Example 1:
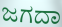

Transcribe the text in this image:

ಜಗದಾ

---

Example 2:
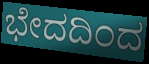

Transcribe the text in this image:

ಭೇದದಿಂದ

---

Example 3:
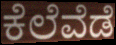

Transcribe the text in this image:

ಕೆಲೆವೆಡೆ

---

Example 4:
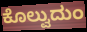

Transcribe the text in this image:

ಕೊಲ್ವುದುಂ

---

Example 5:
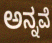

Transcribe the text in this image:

ಅನ್ನವೆ